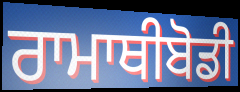
ਰਾਮਾਥੀਬੋਡੀ